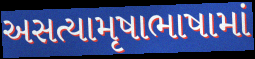
અસત્યામૃષાભાષામાં